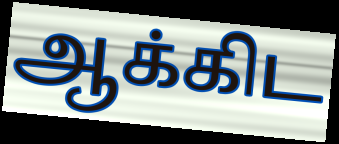
ஆக்கிட